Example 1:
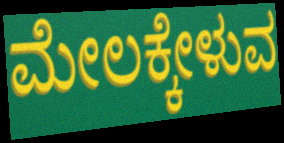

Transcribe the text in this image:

ಮೇಲಕ್ಕೇಳುವ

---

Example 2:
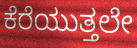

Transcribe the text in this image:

ಕೆರೆಯುತ್ತಲೇ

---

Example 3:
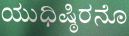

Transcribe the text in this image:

ಯುಧಿಷ್ಠಿರನೊ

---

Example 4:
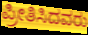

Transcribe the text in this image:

ಪ್ರೀತಿಸಿದವರು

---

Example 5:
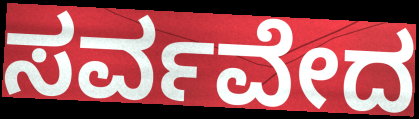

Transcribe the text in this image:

ಸರ್ವವೇದ